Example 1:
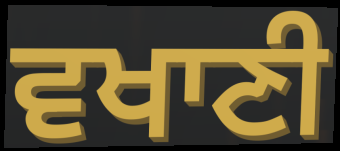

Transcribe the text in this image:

ਵਖਾਣੀ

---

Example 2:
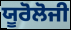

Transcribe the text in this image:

ਯੂਰੋਲੋਜੀ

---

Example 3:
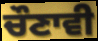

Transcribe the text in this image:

ਚੌਣਾਵੀ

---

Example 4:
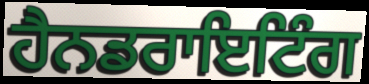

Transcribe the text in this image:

ਹੈਨਡਰਾਇਟਿੰਗ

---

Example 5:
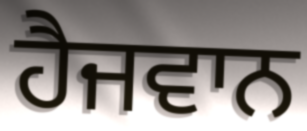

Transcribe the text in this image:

ਹੈਜਵਾਨ